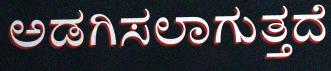
ಅಡಗಿಸಲಾಗುತ್ತದೆ